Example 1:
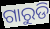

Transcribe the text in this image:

ଗାରୁଡି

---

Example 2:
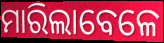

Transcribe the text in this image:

ମାରିଲାବେଳେ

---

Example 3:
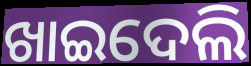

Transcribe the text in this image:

ଖାଇଦେଲି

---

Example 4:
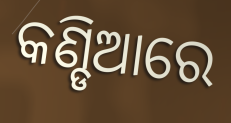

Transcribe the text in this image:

କଣ୍ଡିଆରେ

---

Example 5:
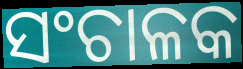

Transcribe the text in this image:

ସଂଚାଳକ